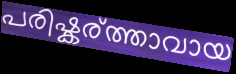
പരിഷ്കര്ത്താവായ